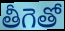
తీగెతో